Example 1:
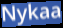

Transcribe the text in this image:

Nykaa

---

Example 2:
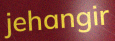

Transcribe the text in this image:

jehangir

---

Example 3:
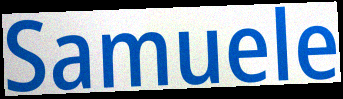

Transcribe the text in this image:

Samuele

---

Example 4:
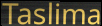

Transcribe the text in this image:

Taslima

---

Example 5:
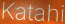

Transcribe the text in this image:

Katahi